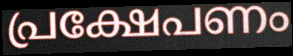
പ്രക്ഷേപണം